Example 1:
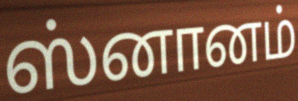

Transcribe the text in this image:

ஸ்னானம்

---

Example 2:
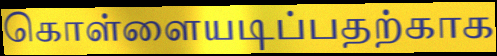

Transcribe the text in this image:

கொள்ளையடிப்பதற்காக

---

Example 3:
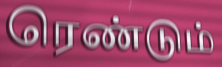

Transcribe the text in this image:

ரெண்டும்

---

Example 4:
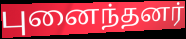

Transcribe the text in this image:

புனைந்தனர்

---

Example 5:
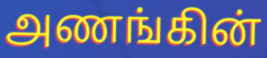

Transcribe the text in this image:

அணங்கின்